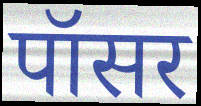
पॉसर